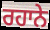
ਰਹਾਨੇ